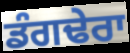
ਡੰਗਢੇਰਾ